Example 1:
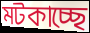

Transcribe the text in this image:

মটকাচ্ছে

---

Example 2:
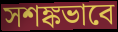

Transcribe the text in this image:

সশঙ্কভাবে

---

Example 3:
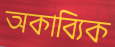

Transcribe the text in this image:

অকাব্যিক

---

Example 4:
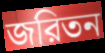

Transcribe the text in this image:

জরিতন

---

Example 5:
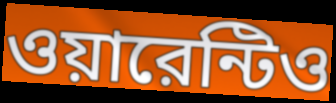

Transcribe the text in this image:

ওয়ারেন্টিও